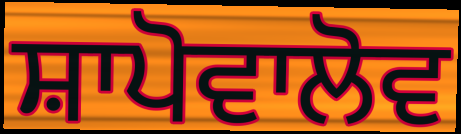
ਸ਼ਾਪੋਵਾਲੋਵ